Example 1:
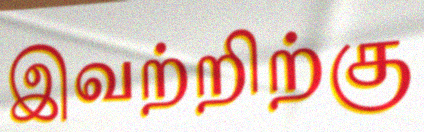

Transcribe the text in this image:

இவற்றிற்கு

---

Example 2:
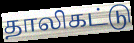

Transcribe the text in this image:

தாலிகட்டு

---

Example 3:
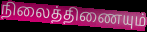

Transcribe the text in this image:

நிலைத்திணையும்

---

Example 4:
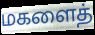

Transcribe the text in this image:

மகளைத்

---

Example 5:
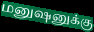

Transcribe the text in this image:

மனுஷனுக்கு